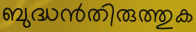
ബുദ്ധൻതിരുത്തുക